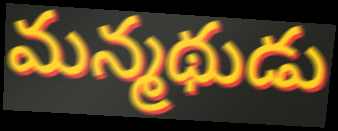
మన్మథుడు